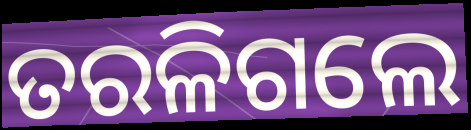
ତରଳିଗଲେ